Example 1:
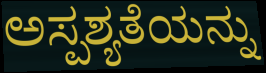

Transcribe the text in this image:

ಅಸ್ಪಶ್ಯತೆಯನ್ನು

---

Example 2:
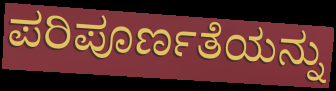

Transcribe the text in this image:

ಪರಿಪೂರ್ಣತೆಯನ್ನು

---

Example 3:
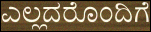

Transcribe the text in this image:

ಎಲ್ಲದರೊಂದಿಗೆ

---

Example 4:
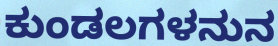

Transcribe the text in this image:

ಕುಂಡಲಗಳನುನ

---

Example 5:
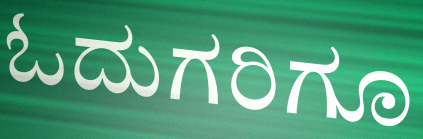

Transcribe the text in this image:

ಓದುಗರಿಗೂ